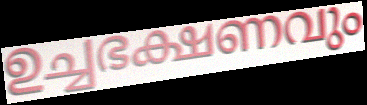
ഉച്ചഭക്ഷണവും